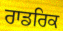
ਰਾਡਰਿਕ